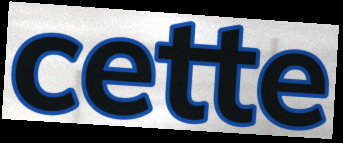
cette